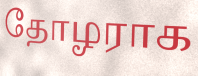
தோழராக